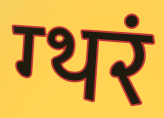
ग्थरं